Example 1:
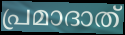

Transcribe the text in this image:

പ്രമാദാത്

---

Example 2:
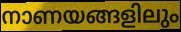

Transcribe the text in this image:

നാണയങ്ങളിലും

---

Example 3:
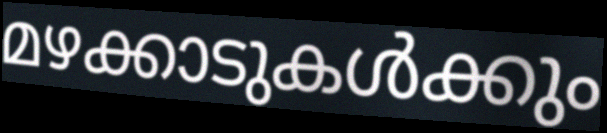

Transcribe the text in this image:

മഴക്കാടുകൾക്കും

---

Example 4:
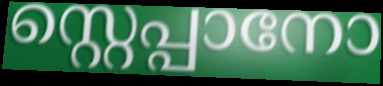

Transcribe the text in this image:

സ്റ്റെപ്പാനോ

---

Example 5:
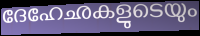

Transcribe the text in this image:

ദേഹേഛകളുടെയും